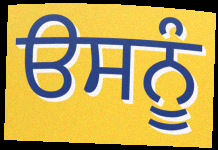
ੳਸਨੂੰ